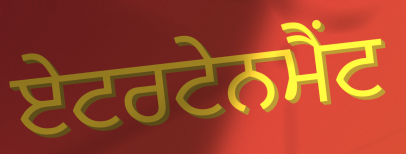
ਏਟਰਟੇਨਮੈਂਟ